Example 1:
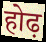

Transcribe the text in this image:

होढ़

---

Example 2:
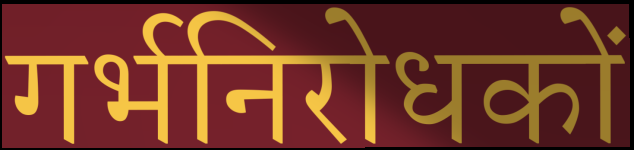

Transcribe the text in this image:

गर्भनिरोधकों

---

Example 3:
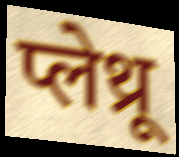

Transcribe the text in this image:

प्लेथ्रू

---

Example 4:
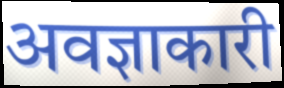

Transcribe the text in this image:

अवज्ञाकारी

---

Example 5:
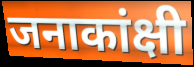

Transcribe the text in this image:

जनाकांक्षी